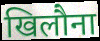
खिलौना